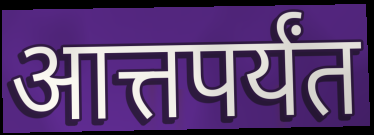
आत्तपर्यंत